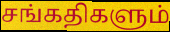
சங்கதிகளும்